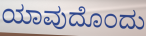
ಯಾವುದೊಂದು